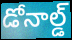
డోనాల్డ్